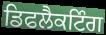
ਡਿਫਲੈਕਟਿੰਗ